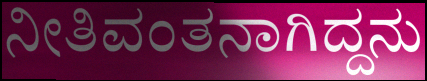
ನೀತಿವಂತನಾಗಿದ್ದನು